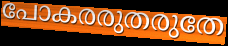
പോകരരുതരുതേ